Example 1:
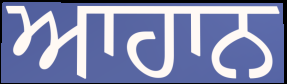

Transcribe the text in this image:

ਆਹਾਨ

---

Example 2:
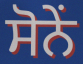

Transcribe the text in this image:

ਸੋਨੇਂ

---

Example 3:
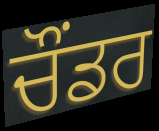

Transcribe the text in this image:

ਚੌਂਡਰ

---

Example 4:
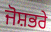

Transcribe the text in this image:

ਜੋਸ਼ਭਰੇ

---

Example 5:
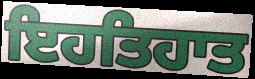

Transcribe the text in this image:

ਇਹਤਿਹਾਤ